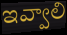
ఇవ్వాలి